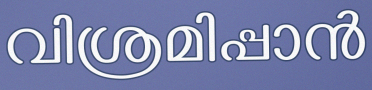
വിശ്രമിപ്പാൻ